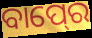
ବାପ୍‍ରେ